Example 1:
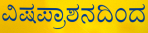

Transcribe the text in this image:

ವಿಷಪ್ರಾಶನದಿಂದ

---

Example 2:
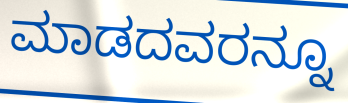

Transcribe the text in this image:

ಮಾಡದವರನ್ನೂ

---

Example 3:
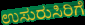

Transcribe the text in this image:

ಉಸುರುಸಿರಿಗೆ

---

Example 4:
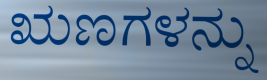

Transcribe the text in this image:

ಋಣಗಳನ್ನು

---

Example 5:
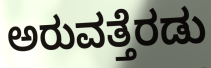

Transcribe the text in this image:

ಅರುವತ್ತೆರಡು